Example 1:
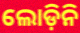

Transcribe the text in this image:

ଲୋଡ଼ିନି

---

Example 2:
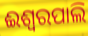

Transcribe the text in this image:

ଈଶ୍ୱରପାଲି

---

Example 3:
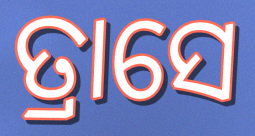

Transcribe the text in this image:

ତ୍ରାସେ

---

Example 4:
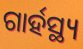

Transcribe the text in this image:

ଗାର୍ହସ୍ଥ୍ୟ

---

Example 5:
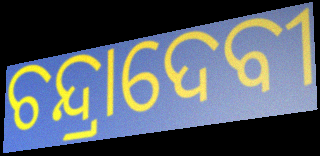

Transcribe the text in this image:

ଚନ୍ଦ୍ରାଦେବୀ